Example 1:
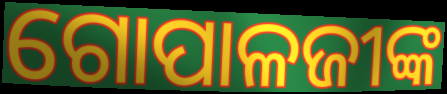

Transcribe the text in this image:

ଗୋପାଳଜୀଙ୍କ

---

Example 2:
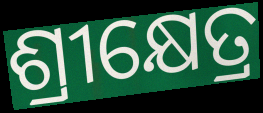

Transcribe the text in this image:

ଶ୍ରୀକ୍ଷେତ୍ର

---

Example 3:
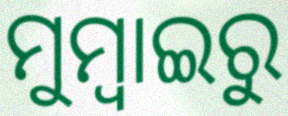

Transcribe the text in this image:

ମୁମ୍ବାଇରୁ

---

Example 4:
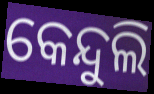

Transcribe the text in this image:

କେନ୍ଦୁଲି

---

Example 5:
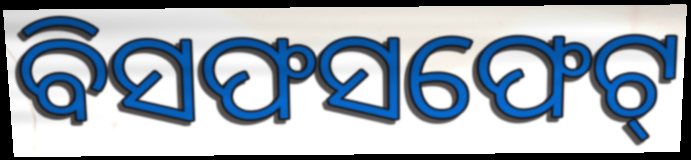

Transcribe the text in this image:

ବିସଫସଫେଟ୍